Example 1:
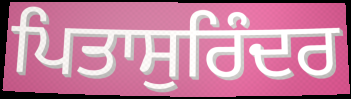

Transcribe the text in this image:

ਪਿਤਾਸੁਰਿੰਦਰ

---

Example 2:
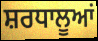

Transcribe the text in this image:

ਸ਼ਰਧਾਲੂਆਂ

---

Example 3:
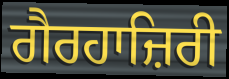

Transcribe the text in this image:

ਗੈਰਹਾਜ਼ਿਰੀ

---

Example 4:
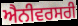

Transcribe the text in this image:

ਐਨੀਵਰਸਰੀ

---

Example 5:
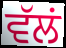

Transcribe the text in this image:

ਵੱਲਂ